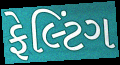
ફેલ્ટિંગ